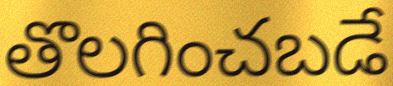
తొలగించబడే